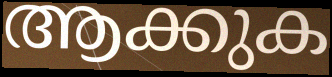
ആക്കുക